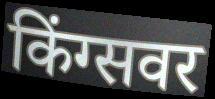
किंग्सवर